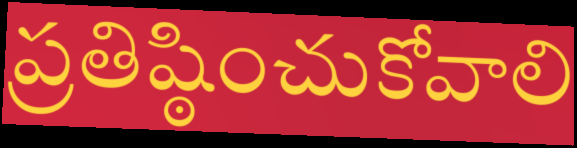
ప్రతిష్ఠించుకోవాలి